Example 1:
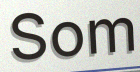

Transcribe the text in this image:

Som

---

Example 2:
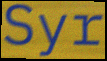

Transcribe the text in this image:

Syr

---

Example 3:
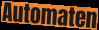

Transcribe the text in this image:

Automaten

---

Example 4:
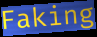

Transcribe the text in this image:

Faking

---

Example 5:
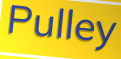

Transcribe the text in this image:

Pulley